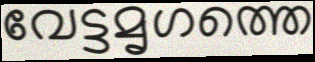
വേട്ടമൃഗത്തെ